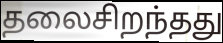
தலைசிறந்தது